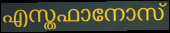
എസ്തഫാനോസ്